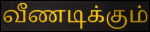
வீணடிக்கும்